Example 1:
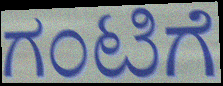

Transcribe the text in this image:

ಗಂಟಿಗೆ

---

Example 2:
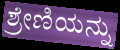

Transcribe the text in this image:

ಶ್ರೇಣಿಯನ್ನು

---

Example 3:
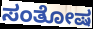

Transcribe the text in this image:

ಸಂತೋಷ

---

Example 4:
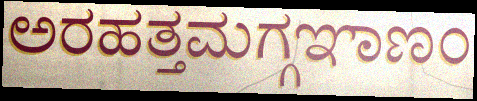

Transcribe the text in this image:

ಅರಹತ್ತಮಗ್ಗಞಾಣಂ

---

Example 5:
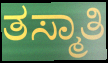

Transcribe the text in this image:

ತಸ್ಮಾತಿ